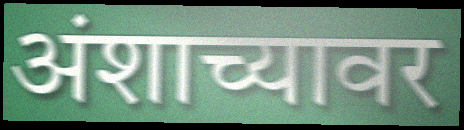
अंशाच्यावर